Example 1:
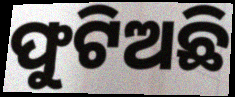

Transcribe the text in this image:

ଫୁଟିଅଛି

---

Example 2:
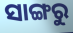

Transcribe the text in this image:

ସାଙ୍ଗରୁ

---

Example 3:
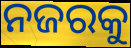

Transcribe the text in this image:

ନଜରକୁ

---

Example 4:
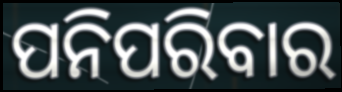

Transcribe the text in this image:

ପନିପରିବାର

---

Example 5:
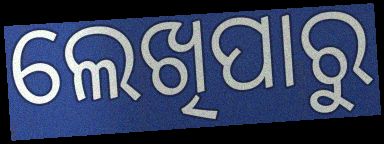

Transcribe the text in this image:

ଲେଖିପାରୁ